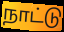
நாட்டு